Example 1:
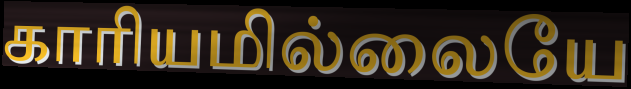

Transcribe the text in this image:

காரியமில்லையே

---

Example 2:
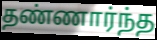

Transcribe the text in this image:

தண்ணார்ந்த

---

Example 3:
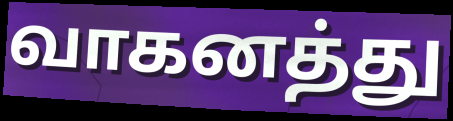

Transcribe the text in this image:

வாகனத்து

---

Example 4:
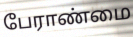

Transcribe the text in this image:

பேராண்மை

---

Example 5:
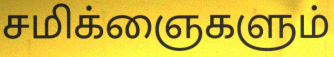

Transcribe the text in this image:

சமிக்ஞைகளும்